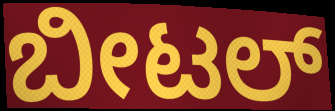
ಬೀಟಲ್